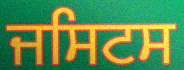
ਜਸਿਟਸ